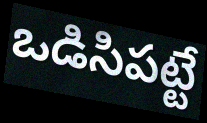
ఒడిసిపట్టే